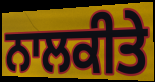
ਨਾਲਕੀਤੇ